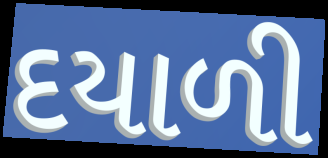
દયાળી